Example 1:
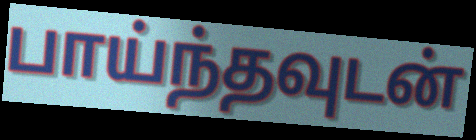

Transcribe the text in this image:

பாய்ந்தவுடன்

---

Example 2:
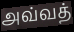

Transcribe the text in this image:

அவ்வத்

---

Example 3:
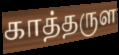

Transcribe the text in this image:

காத்தருள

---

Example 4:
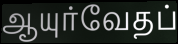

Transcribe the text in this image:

ஆயுர்வேதப்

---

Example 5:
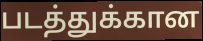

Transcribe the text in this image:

படத்துக்கான